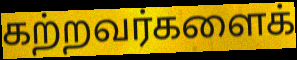
கற்றவர்களைக்